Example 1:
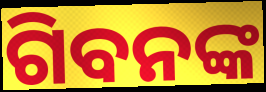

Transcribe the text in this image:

ଗିବନଙ୍କ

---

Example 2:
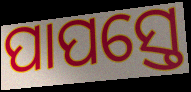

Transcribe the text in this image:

ପାପସ୍ତେ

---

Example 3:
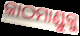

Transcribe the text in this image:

କାଠମାଣ୍ଡୁକୁ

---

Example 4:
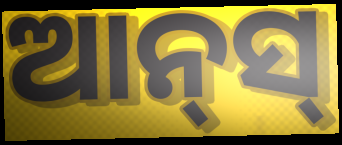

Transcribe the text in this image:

ଆନ୍‌ସ୍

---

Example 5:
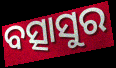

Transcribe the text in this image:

ବତ୍ସାସୁର